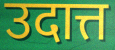
उदात्त